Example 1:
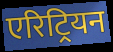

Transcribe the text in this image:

एरिट्रियन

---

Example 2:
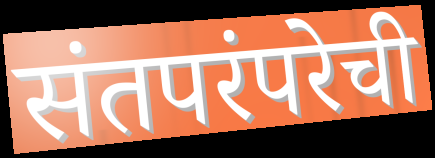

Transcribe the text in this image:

संतपरंपरेची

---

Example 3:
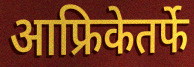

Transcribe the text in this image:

आफ्रिकेतर्फे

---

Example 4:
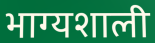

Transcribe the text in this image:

भाग्यशाली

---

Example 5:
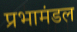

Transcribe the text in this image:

प्रभामंडल